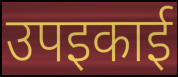
उपइकाई